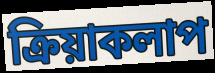
ক্রিয়াকলাপ